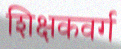
शिक्षकवर्ग